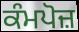
ਕੰਮਪੋਜ਼